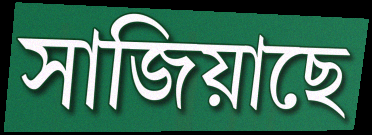
সাজিয়াছে